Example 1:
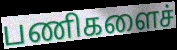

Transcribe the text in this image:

பணிகளைச்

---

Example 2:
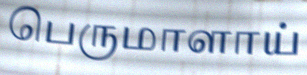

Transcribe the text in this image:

பெருமாளாய்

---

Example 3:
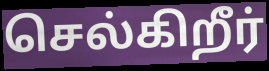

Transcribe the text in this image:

செல்கிறீர்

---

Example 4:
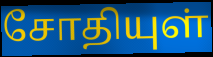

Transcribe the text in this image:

சோதியுள்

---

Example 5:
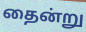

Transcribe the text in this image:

தைன்று